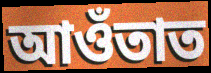
আওঁতাত